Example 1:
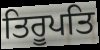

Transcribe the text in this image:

ਤਿਰੂਪਤਿ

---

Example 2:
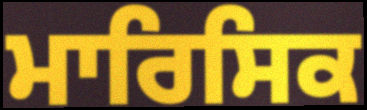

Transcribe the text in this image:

ਮਾਰਿਸਿਕ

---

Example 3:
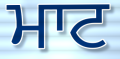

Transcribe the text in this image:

ਮਾਟ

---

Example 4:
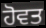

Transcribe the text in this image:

ਹੋਵਤ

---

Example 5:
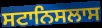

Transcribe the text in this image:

ਸਟਾਨਿਸਲਾਸ